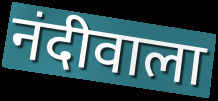
नंदीवाला